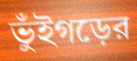
ভুঁইগড়ের